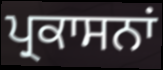
ਪ੍ਰਕਾਸਨਾਂ